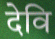
देवि